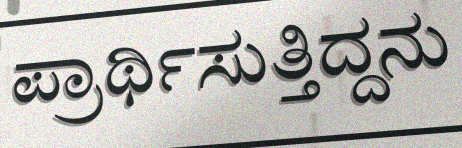
ಪ್ರಾರ್ಥಿಸುತ್ತಿದ್ದನು